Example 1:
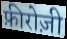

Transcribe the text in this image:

फ़ीरोज़ी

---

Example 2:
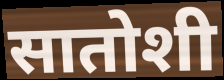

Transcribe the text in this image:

सातोशी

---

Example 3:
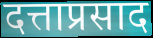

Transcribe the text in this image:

दत्ताप्रसाद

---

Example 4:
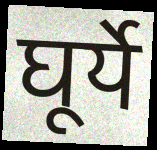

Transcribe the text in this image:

घूर्ये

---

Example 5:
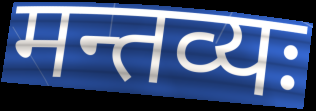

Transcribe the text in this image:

मन्तव्यः